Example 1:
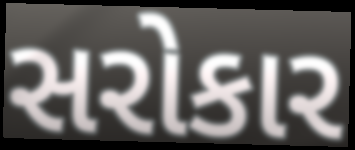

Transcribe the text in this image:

સરોકાર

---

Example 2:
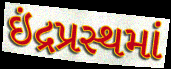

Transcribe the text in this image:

ઇંદ્રપ્રસ્થમાં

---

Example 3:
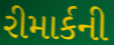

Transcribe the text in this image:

રીમાર્કની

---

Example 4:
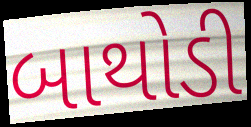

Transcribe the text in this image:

બાથોડી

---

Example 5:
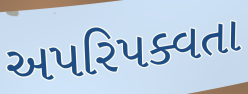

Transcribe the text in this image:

અપરિપક્વતા